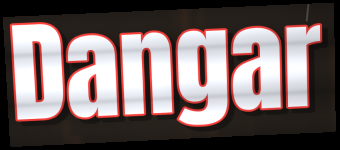
Dangar